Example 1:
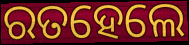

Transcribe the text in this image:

ରତହେଲେ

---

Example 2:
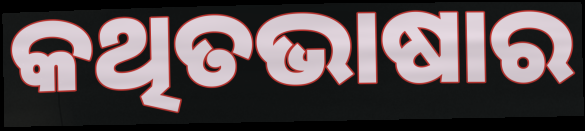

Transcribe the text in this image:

କଥିତଭାଷାର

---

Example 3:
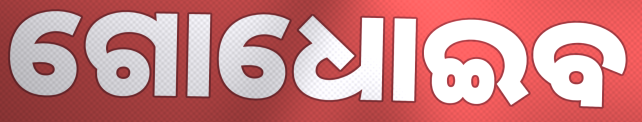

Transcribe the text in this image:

ଗୋଧୋଇବ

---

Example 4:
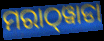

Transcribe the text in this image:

ମରାଠ୍‌ୱାଡା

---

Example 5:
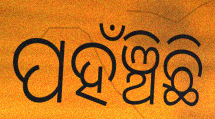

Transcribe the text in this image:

ପହଁଞ୍ଚିଛି